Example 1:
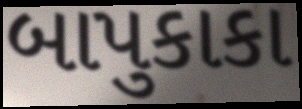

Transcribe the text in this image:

બાપુકાકા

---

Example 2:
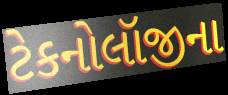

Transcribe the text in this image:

ટેકનોલૉજીના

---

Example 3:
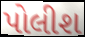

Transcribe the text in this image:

પોલીશ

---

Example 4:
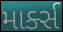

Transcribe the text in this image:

માર્ક્સ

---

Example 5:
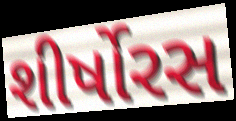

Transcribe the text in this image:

શીર્ષોરસ